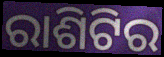
ରାଶିଟିର